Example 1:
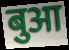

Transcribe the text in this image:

बुआ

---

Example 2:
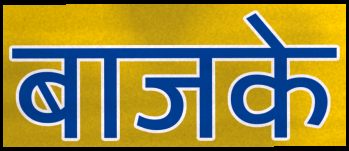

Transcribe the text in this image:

बाजके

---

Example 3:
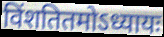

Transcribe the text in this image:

विंशतितमोऽध्यायः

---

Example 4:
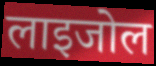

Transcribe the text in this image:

लाइजोल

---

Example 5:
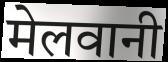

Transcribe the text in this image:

मेलवानी